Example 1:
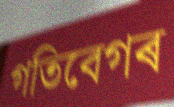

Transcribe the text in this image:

গতিবেগৰ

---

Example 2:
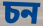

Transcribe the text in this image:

চন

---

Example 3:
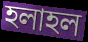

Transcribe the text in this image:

হলাহল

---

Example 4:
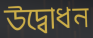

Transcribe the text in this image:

উদ্বোধন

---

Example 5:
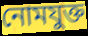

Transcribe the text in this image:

নোমযুক্ত